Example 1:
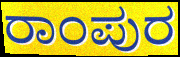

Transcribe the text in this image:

ರಾಂಪುರ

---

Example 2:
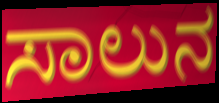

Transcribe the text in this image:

ಸಾಲುನ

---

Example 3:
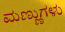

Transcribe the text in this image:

ಮಣ್ಣುಗಳು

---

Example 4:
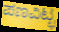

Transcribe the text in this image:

ಪಣವಿಟ್ಟ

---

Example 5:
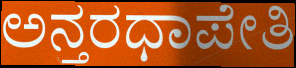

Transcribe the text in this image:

ಅನ್ತರಧಾಪೇತಿ